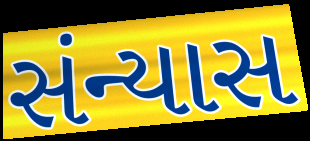
સંન્યાસ